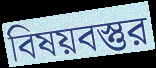
বিষয়বস্তুর